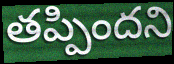
తప్పిందని